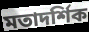
মতাদর্শিক